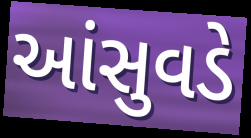
આંસુવડે